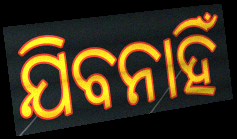
ଯିବନାହିଁ